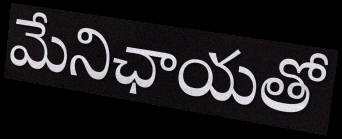
మేనిఛాయతో